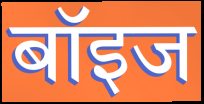
बॉइज